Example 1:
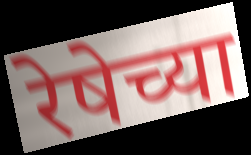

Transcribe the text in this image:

रेषेच्या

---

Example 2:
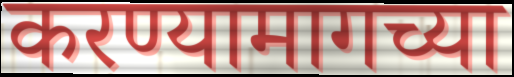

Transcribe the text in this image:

करण्यामागच्या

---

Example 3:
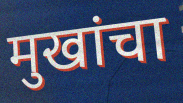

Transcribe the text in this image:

मुखांचा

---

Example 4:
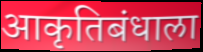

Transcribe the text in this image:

आकृतिबंधाला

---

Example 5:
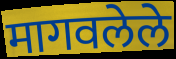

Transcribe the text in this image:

मागवलेले